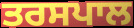
ਤਰਸਪਾਲ